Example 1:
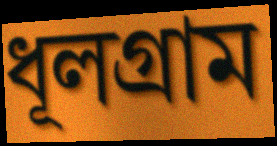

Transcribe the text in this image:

ধূলগ্রাম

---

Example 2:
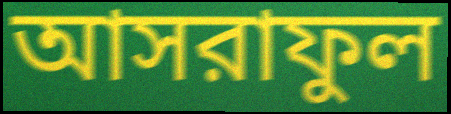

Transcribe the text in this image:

আসরাফুল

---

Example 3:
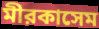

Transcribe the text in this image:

মীরকাসেম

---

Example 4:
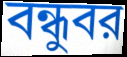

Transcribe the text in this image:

বন্ধুবর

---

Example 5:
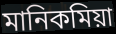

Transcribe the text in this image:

মানিকমিয়া